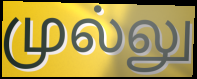
முல்லு